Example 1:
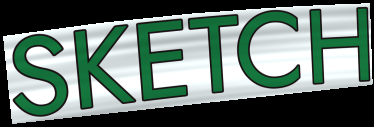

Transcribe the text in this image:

SKETCH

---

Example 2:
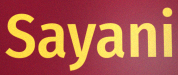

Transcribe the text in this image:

Sayani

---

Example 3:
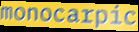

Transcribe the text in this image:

monocarpic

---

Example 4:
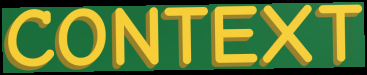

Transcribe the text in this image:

CONTEXT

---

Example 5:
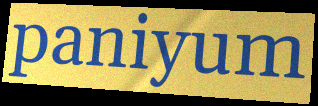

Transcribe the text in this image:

paniyum